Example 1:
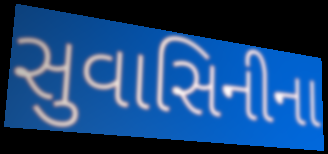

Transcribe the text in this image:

સુવાસિનીના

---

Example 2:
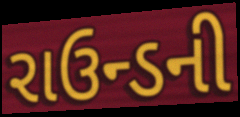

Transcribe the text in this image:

રાઉન્ડની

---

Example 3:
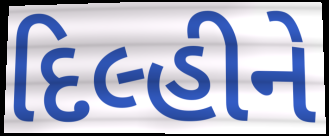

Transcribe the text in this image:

દિલ્હીને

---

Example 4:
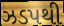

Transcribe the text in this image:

ઝડપથી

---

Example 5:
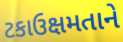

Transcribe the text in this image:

ટકાઉક્ષમતાને